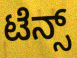
ಟೆನ್ಸ್